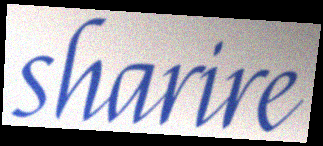
sharire